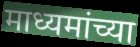
माध्यमांच्या